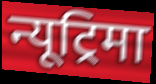
न्यूट्रिमा